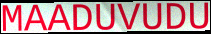
MAADUVUDU